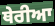
ਥੇਰੀਆ